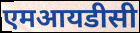
एमआयडीसी